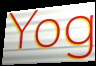
Yog